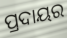
ପ୍ରଦାୟର